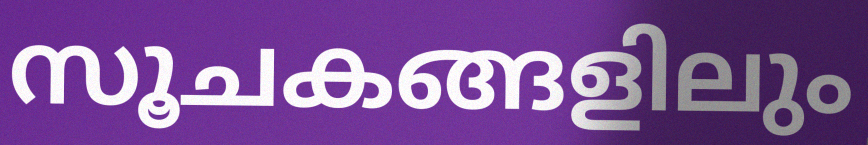
സൂചകങ്ങളിലും